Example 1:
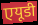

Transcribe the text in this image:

एयूडी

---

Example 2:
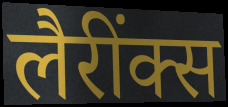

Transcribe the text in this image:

लैरींक्स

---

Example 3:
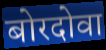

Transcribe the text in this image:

बोरदोवा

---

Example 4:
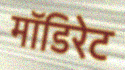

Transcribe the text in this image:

मॉडिरेट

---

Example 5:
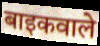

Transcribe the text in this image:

बाइकवाले